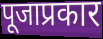
पूजाप्रकार